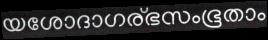
യശോദാഗര്ഭസംഭൂതാം